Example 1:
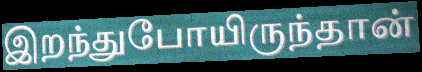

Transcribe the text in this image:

இறந்துபோயிருந்தான்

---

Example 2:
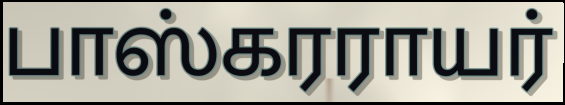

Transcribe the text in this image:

பாஸ்கரராயர்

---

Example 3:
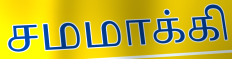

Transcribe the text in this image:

சமமாக்கி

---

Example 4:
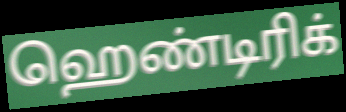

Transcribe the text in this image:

ஹெண்டிரிக்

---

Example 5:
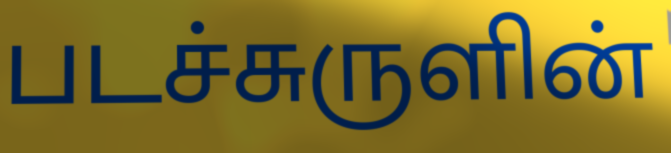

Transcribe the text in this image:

படச்சுருளின்